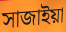
সাজাইয়া